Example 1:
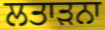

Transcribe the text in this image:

ਲਤਾੜਨਾ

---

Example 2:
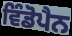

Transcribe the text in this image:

ਵਿੰਡੋਪੈਨ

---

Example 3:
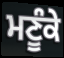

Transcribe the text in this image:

ਮਣੂੰਕੇ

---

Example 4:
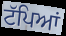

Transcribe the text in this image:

ਟੱਪਿਆਂ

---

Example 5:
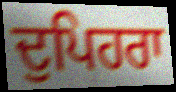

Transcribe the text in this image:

ਦੁਪਿਹਰਾ